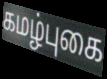
கமழ்புகை